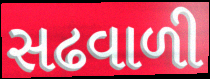
સઢવાળી